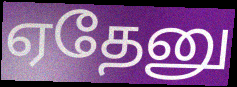
ஏதேனு